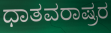
ಧಾತವರಾಷ್ರರ